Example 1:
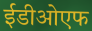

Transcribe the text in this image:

ईडीओएफ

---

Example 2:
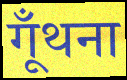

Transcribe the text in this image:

गूँथना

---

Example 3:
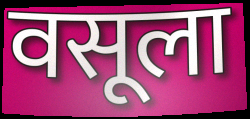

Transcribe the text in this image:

वसूला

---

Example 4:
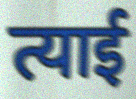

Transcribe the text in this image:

त्याई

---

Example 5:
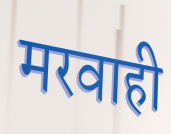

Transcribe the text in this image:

मरवाही